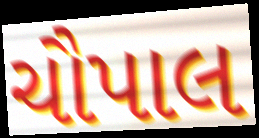
ચૌપાલ